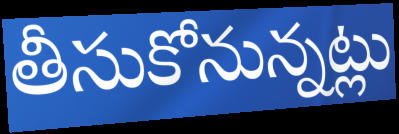
తీసుకోనున్నట్లు